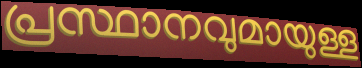
പ്രസ്ഥാനവുമായുള്ള